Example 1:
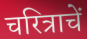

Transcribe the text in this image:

चरित्राचें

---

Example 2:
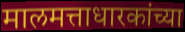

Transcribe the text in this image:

मालमत्ताधारकांच्या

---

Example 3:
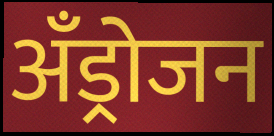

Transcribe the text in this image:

अँड्रोजन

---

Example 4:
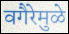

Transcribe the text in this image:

वगैरेमुळे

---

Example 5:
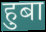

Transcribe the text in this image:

हुबा